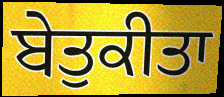
ਬੇਤੁਕੀਤਾ